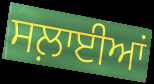
ਸਲ਼ਾਈਆਂ